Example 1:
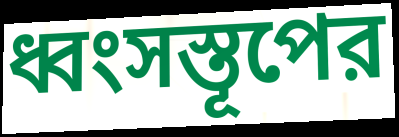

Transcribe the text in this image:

ধ্বংসস্তূপের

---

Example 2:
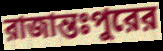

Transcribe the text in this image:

রাজান্তঃপুরের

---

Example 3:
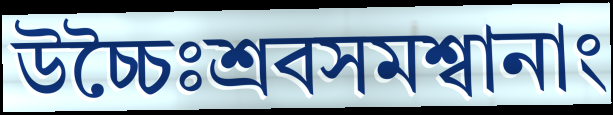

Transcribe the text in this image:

উচ্চৈঃশ্রবসমশ্বানাং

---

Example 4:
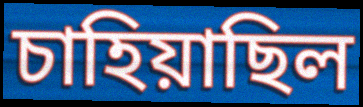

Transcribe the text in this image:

চাহিয়াছিল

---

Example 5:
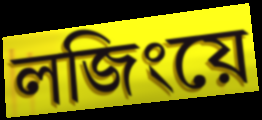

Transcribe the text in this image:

লজিংয়ে